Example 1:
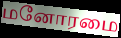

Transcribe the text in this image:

மனோரமை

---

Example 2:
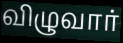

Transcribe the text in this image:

விழுவார்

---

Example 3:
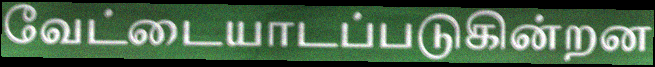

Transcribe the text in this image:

வேட்டையாடப்படுகின்றன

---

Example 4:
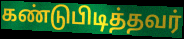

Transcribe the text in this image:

கண்டுபிடித்தவர்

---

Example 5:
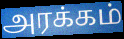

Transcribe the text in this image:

அரக்கம்